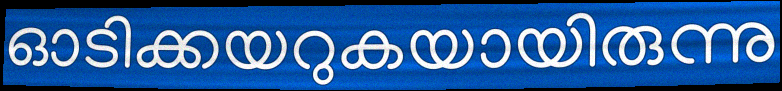
ഓടിക്കയറുകയായിരുന്നു